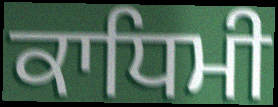
ਕਾਧਿਮੀ